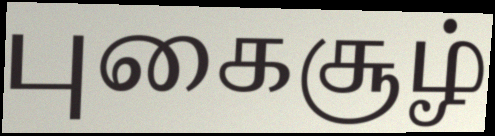
புகைசூழ்